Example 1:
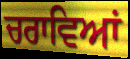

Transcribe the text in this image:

ਚਰਾਵਿਆਂ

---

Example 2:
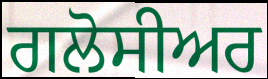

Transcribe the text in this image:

ਗਲੋਸੀਅਰ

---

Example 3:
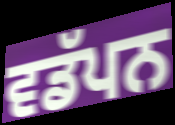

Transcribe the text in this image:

ਵਡੱਪਨ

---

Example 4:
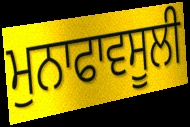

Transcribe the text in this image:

ਮੁਨਾਫਾਵਸੂਲੀ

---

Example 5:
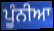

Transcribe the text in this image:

ਪੂੰਨੀਆ